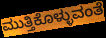
ಮುತ್ತಿಕೊಳ್ಳುವಂತೆ